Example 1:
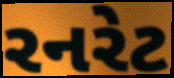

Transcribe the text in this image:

રનરેટ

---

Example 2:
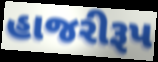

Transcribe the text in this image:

હાજરીરૂપ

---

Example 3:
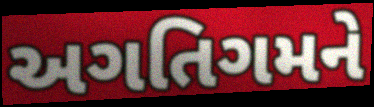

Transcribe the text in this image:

અગતિગમને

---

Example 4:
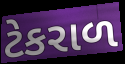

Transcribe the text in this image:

ટેકરાળ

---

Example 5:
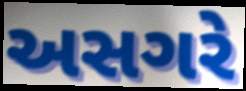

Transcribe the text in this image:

અસગરે